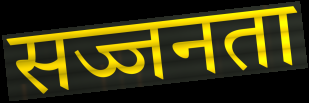
सज्जनता